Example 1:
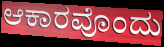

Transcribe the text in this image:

ಆಕಾರವೊಂದು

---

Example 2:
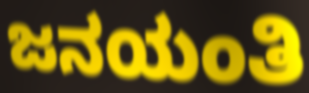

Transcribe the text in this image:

ಜನಯಂತಿ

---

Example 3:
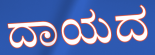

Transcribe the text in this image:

ದಾಯದ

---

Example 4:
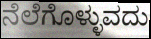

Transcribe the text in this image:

ನೆಲೆಗೊಳ್ಳುವದು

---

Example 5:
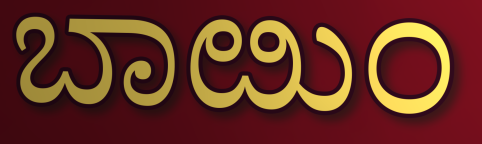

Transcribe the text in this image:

ಬಾೞುಂ